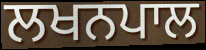
ਲਖਨਪਾਲ